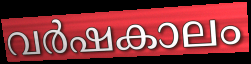
വർഷകാലം